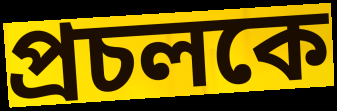
প্রচলকে